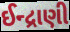
ઈન્દ્રાણી